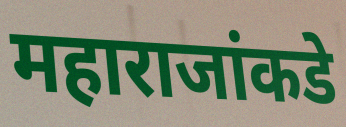
महाराजांकडे